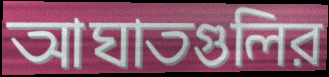
আঘাতগুলির